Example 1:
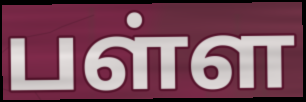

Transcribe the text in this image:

பள்ள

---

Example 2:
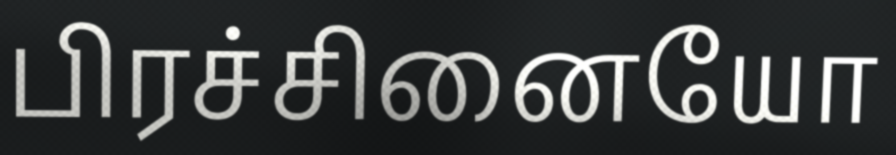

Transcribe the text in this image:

பிரச்சினையோ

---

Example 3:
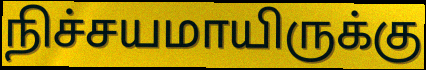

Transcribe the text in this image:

நிச்சயமாயிருக்கு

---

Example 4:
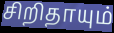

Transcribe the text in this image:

சிறிதாயும்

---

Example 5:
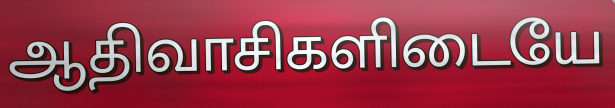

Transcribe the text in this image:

ஆதிவாசிகளிடையே